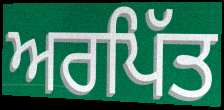
ਅਰਪਿੱਤ